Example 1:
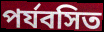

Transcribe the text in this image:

পর্যবসিত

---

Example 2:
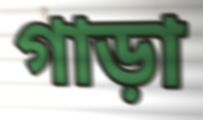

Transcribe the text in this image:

গাড়া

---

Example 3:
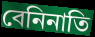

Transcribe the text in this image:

বেনিনাতি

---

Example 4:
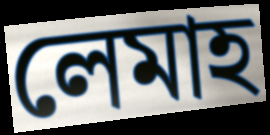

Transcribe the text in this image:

লেমাহ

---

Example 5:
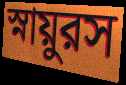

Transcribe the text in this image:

স্নায়ুরস